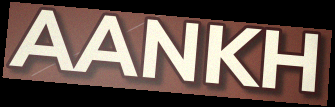
AANKH